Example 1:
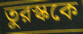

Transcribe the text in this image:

তুরস্ককে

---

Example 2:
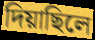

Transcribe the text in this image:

দিয়াছিলে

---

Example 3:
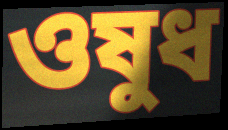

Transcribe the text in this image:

ওষুধ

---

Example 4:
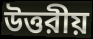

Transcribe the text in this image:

উত্তরীয়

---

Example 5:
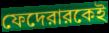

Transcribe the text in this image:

ফেদেরারকেই